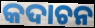
କଦାଚନ